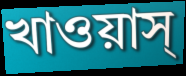
খাওয়াস্